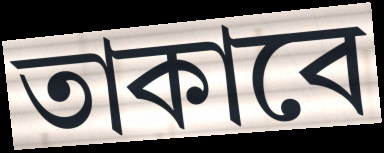
তাকাবে